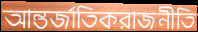
আন্তর্জাতিকরাজনীতি